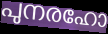
പുനരഹോ